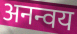
अनन्वय